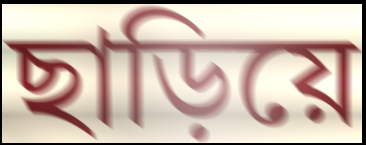
ছাড়িয়ে